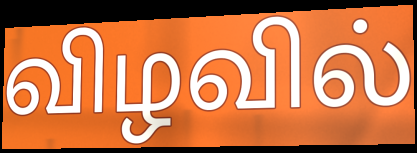
விழவில்